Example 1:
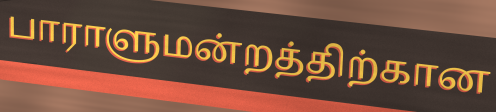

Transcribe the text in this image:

பாராளுமன்றத்திற்கான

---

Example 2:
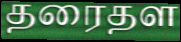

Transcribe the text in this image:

தரைதள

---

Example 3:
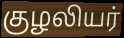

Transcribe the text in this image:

குழலியர்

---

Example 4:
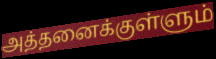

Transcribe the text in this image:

அத்தனைக்குள்ளும்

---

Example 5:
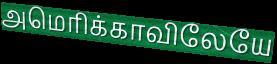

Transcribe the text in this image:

அமெரிக்காவிலேயே